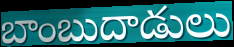
బాంబుదాడులు